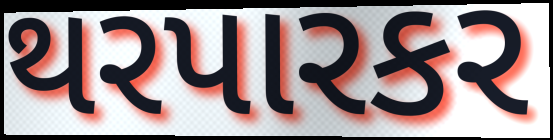
થરપારકર